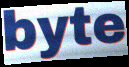
byte